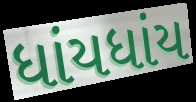
ધાંયધાંય